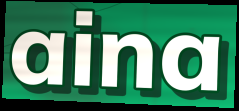
aina